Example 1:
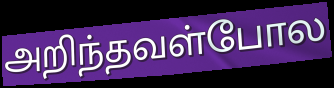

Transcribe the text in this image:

அறிந்தவள்போல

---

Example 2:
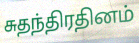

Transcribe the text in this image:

சுதந்திரதினம்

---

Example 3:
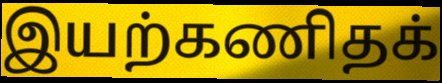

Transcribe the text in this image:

இயற்கணிதக்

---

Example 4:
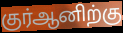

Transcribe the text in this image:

குர்ஆனிற்கு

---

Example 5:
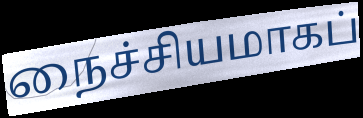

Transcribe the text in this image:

நைச்சியமாகப்